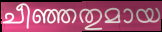
ചീഞ്ഞതുമായ